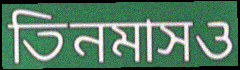
তিনমাসও